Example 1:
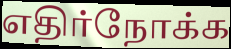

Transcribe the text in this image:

எதிர்நோக்க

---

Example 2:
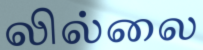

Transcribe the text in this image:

லில்லை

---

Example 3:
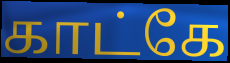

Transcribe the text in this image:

காட்கே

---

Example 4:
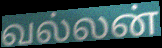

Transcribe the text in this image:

வல்லன்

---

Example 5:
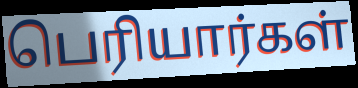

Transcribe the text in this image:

பெரியார்கள்